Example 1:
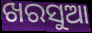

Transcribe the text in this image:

ଖରସୁଆ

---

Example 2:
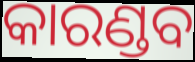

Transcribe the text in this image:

କାରଣ୍ଡବ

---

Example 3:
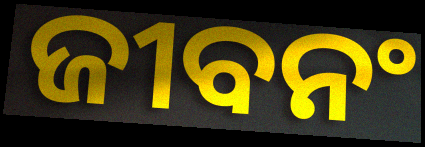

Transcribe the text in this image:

ଜୀବନଂ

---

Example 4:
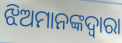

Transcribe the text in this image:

ଝିଅମାନଙ୍କଦ୍ଵାରା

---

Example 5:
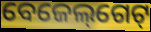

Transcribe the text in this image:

ବେଜେଲ୍‌ଗେଟ୍